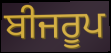
ਬੀਜਰੂਪ